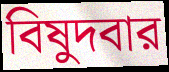
বিষুদবার